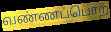
வண்ணப்பொற்